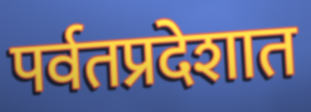
पर्वतप्रदेशात